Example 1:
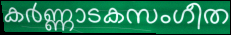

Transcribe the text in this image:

കർണ്ണാടകസംഗീത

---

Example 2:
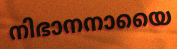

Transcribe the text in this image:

നിഭാനനായൈ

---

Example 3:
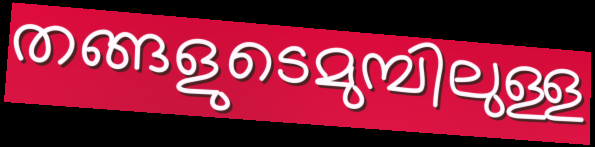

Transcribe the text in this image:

തങ്ങളുടെമുമ്പിലുള്ള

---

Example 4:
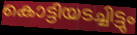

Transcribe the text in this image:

കൊട്ടിയടച്ചിട്ടും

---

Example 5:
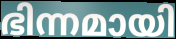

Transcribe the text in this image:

ഭിന്നമായി